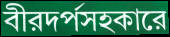
বীরদর্পসহকারে